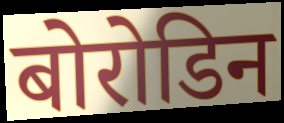
बोरोडिन